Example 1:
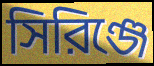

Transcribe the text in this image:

সিরিঞ্জে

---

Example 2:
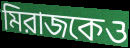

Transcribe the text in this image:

মিরাজকেও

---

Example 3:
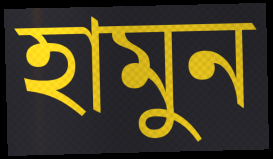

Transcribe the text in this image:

হামুন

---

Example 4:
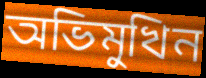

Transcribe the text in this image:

অভিমুখিন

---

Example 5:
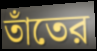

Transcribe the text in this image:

তাঁতের